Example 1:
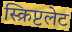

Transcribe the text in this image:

स्क्रिप्टलेट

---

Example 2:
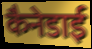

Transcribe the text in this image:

कैनेडाई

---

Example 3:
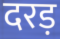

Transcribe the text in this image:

दरड़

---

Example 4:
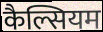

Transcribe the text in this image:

कैल्सियम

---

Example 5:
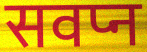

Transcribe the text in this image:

सवप्न